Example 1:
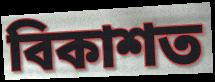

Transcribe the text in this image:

বিকাশত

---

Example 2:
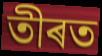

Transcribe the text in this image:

তীৰত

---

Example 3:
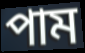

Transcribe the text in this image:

পাম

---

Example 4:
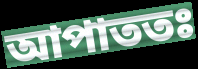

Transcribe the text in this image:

আপাততঃ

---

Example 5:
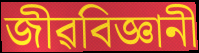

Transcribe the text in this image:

জীৱবিজ্ঞানী